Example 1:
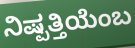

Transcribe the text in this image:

ನಿಷ್ಪತ್ತಿಯೆಂಬ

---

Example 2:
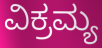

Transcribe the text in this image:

ವಿಕ್ರಮ್ಯ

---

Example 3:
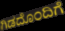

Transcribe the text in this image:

ಗಿಡದೊಂದಿಗೆ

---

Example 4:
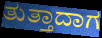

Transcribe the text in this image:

ತುತ್ತಾದಾಗ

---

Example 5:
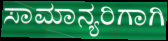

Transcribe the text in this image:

ಸಾಮಾನ್ಯರಿಗಾಗಿ